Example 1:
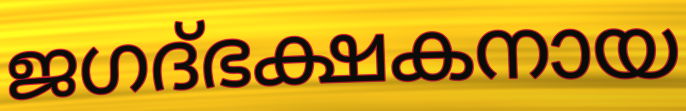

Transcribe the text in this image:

ജഗദ്ഭക്ഷകനായ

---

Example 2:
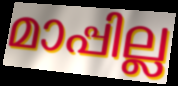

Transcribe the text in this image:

മാപ്പില്ല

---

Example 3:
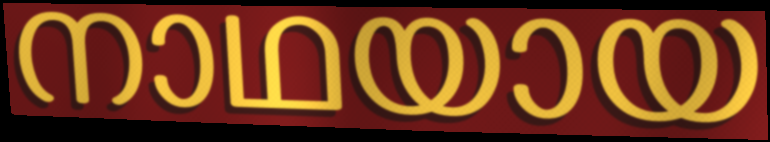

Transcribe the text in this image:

നാഥയായ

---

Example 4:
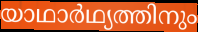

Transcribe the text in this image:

യാഥാർഥ്യത്തിനും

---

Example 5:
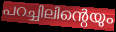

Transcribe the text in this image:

പറച്ചിലിന്റെയും